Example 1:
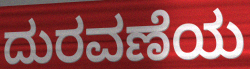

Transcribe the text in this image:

ದುರವಣೆಯ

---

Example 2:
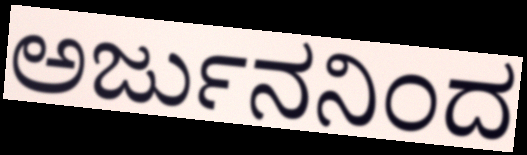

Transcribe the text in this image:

ಅರ್ಜುನನಿಂದ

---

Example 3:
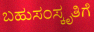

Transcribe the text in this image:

ಬಹುಸಂಸ್ಕೃತಿಗೆ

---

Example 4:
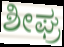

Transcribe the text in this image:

ಶೀಘ್ರ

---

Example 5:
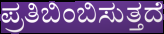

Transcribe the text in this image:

ಪ್ರತಿಬಿಂಬಿಸುತ್ತದೆ